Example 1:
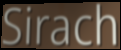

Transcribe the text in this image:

Sirach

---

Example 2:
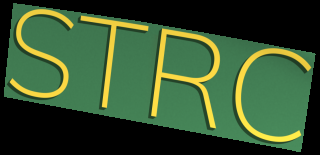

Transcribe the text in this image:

STRC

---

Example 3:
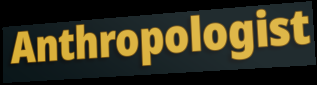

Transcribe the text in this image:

Anthropologist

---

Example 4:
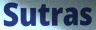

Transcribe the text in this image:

Sutras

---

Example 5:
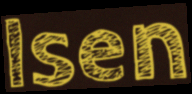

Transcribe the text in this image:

Isen